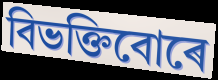
বিভক্তিবোৰে